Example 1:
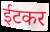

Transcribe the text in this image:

ईटकर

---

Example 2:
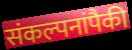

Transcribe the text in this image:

संकल्पनांपैकी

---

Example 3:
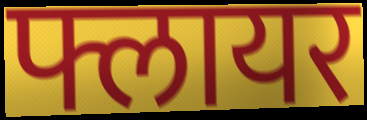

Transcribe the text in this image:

फ्लायर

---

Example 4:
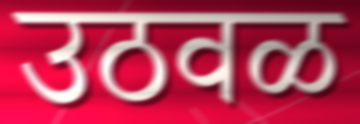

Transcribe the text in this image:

उठवळ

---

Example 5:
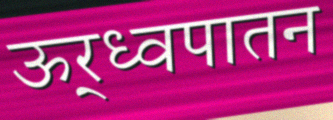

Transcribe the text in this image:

ऊर्ध्वपातन